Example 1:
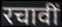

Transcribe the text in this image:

रचावीं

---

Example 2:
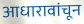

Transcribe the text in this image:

आधारावांचून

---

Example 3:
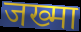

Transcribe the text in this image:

जख्मा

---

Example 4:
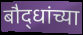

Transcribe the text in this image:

बौद्धांच्या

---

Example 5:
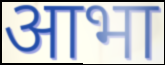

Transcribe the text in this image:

आभा